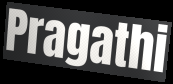
Pragathi